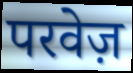
परवेज़